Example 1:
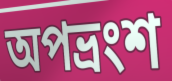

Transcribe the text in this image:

অপভ্ৰংশ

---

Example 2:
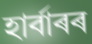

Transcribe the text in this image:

হাৰ্বাৰৰ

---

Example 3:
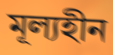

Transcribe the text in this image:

মূল্যহীন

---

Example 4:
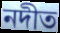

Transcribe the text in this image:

নদীত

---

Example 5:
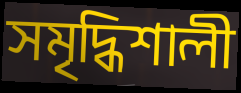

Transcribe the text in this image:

সমৃদ্ধিশালী